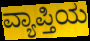
ವ್ಯಾಪ್ತಿಯ